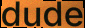
dude